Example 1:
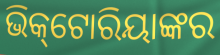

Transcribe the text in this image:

ଭିକ୍‌ଟୋରିୟାଙ୍କର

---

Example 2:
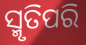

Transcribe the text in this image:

ସ୍ମୃତିପରି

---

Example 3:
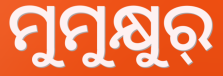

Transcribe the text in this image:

ମୁମୁକ୍ଷୁର୍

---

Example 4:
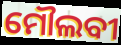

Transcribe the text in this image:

ମୌଲବୀ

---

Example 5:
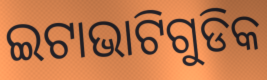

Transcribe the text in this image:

ଇଟାଭାଟିଗୁଡିକ